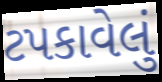
ટપકાવેલું